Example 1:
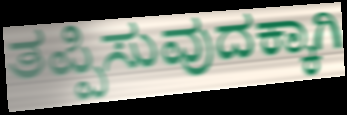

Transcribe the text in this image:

ತಪ್ಪಿಸುವುದಕ್ಕಾಗಿ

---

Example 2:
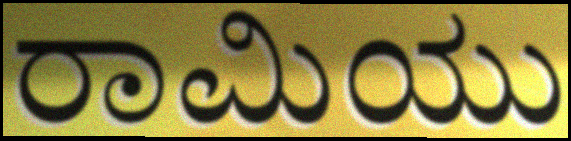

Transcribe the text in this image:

ರಾಮಿಯು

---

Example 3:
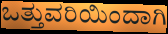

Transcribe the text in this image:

ಒತ್ತುವರಿಯಿಂದಾಗಿ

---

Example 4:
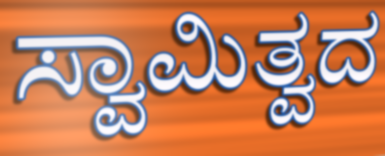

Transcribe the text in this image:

ಸ್ವಾಮಿತ್ವದ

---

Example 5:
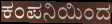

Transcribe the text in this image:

ಕಂಪನಿಯಿಂದ